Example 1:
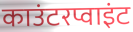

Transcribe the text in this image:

काउंटरप्वाइंट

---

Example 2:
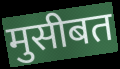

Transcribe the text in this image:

मुसीबत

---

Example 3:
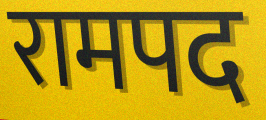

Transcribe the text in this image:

रामपद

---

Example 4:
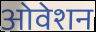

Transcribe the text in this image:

ओवेशन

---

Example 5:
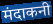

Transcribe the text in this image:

मंदाकनी